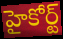
హైకోర్ట్